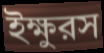
ইক্ষুরস